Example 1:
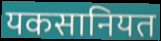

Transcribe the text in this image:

यकसानियत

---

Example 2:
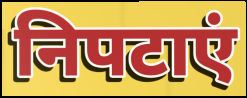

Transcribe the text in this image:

निपटाएं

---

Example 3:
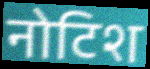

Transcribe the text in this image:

नोटिश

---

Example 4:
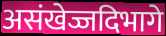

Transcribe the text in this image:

असंखेज्जदिभागे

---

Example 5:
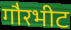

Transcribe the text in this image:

गौरभीट